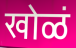
खोळं